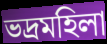
ভদ্ৰমহিলা